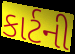
કાર્ટની